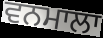
ਵਨਮਾਲਾ